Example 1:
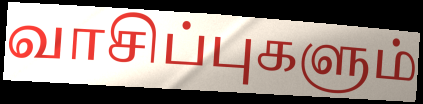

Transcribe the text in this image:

வாசிப்புகளும்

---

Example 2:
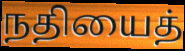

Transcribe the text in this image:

நதியைத்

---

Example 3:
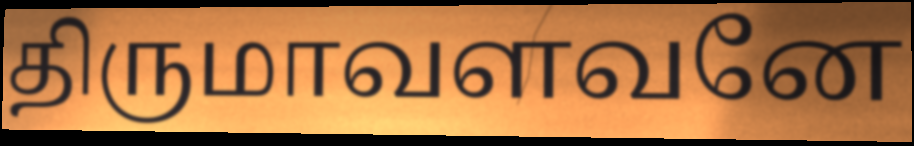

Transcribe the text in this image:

திருமாவளவனே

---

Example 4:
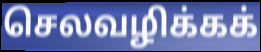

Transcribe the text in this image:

செலவழிக்கக்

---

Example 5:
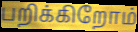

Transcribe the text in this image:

பறிக்கிறோம்